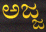
ಅಜ್ಜ